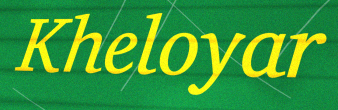
Kheloyar